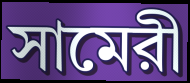
সামেরী